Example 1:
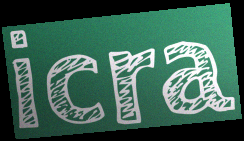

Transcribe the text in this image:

icra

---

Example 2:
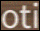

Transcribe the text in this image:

oti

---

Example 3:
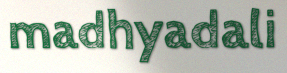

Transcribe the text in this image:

madhyadali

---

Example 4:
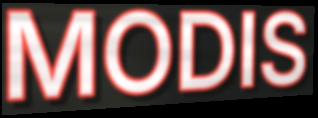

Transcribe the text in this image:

MODIS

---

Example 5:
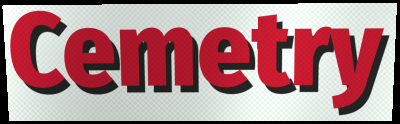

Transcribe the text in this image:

Cemetry